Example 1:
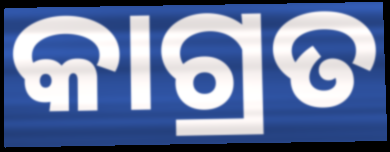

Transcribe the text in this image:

କାଗ୍ରତ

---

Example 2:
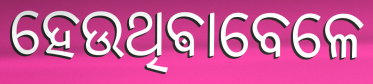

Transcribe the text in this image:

ହେଉଥିଵାବେଳେ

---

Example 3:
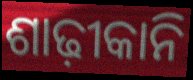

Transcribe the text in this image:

ଶାଢ଼ୀକାନି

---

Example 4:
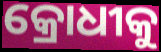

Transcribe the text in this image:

କ୍ରୋଧୀକୁ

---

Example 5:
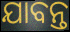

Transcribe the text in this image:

ଯାବନ୍ତ